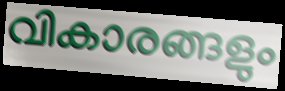
വികാരങ്ങളും